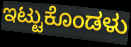
ಇಟ್ಟುಕೊಂಡಳು